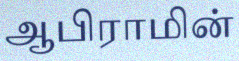
ஆபிராமின்